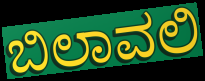
ಬಿಲಾವಲಿ